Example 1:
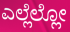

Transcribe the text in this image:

ಎಲ್ಲೆಲ್ಲೋ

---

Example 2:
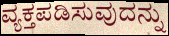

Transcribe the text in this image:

ವ್ಯಕ್ತಪಡಿಸುವುದನ್ನು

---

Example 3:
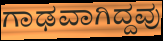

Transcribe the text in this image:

ಗಾಢವಾಗಿದ್ದವು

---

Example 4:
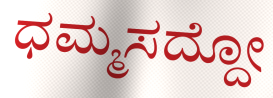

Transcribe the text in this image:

ಧಮ್ಮಸದ್ದೋ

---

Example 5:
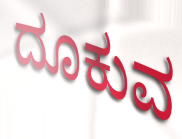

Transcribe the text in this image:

ದೂಕುವ